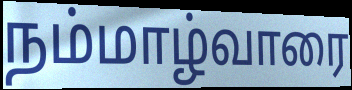
நம்மாழ்வாரை